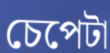
চেপেটা